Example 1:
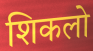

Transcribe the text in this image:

शिकलो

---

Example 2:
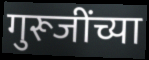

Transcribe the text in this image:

गुरूजींच्या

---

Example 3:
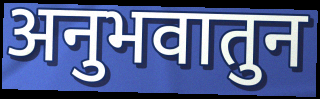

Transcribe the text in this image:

अनुभवातुन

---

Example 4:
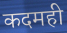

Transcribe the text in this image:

कदमही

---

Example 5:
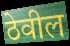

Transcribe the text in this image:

ठेवील